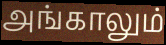
அங்காலும்